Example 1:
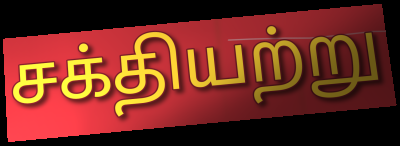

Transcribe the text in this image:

சக்தியற்று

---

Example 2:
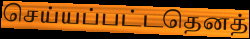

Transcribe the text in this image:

செய்யப்பட்டதெனத்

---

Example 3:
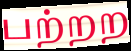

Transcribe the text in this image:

பற்றற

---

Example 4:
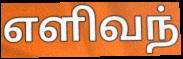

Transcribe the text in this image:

எளிவந்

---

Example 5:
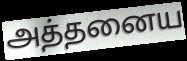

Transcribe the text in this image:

அத்தனைய